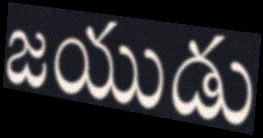
జయుడు